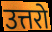
उत्तरो